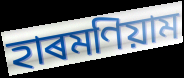
হাৰমণিয়াম